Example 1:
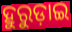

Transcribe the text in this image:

ହୁରୁଡ଼ାଇ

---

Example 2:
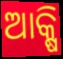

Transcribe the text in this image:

ଆକ୍ଷି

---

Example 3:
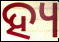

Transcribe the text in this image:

ହ୍ୟ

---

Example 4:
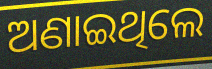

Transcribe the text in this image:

ଅଣାଇଥିଲେ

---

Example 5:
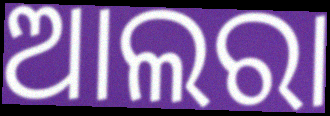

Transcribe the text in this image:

ଆଲରା